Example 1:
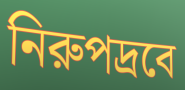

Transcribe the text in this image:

নিরুপদ্রবে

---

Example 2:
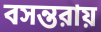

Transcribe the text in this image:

বসন্তরায়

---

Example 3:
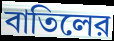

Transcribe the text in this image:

বাতিলের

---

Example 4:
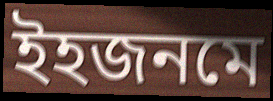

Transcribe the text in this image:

ইহজনমে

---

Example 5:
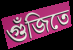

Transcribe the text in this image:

গুঁজিতে